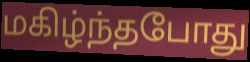
மகிழ்ந்தபோது